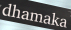
dhamaka